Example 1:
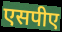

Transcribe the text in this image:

एसपीए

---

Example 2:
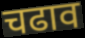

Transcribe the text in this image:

चढाव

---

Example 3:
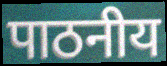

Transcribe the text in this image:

पाठनीय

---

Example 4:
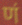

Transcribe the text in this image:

णं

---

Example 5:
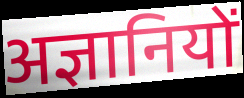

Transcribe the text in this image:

अज्ञानियों